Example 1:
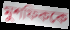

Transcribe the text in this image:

মুশফিককে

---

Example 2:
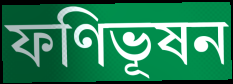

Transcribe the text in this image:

ফণিভূষন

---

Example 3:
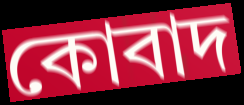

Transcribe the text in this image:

কোবাদ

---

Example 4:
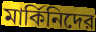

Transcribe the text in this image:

মার্কিনিদের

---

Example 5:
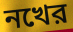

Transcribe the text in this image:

নখের